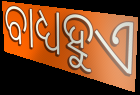
ବାଧ୍ୟହୁଏ